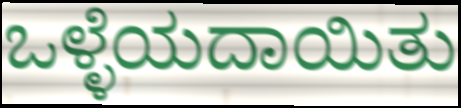
ಒಳ್ಳೆಯದಾಯಿತು